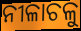
ନୀଳାଚଳୁ